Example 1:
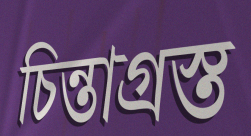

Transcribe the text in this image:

চিন্তাগ্রস্ত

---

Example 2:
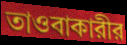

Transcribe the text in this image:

তাওবাকারীর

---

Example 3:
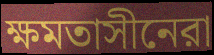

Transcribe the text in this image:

ক্ষমতাসীনেরা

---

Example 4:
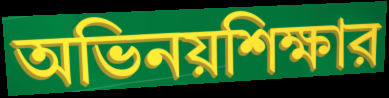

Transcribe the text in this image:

অভিনয়শিক্ষার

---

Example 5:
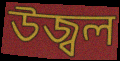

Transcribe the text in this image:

উজ্বল